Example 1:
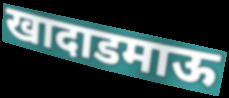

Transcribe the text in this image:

खादाडमाऊ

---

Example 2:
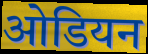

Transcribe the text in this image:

ओडियन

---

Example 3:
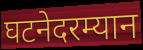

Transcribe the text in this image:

घटनेदरम्यान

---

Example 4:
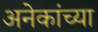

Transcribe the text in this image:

अनेकांच्या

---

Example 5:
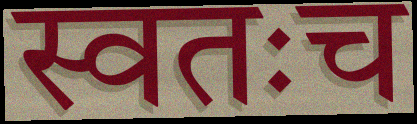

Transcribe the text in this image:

स्वतःच